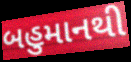
બહુમાનથી